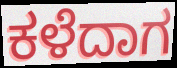
ಕಳೆದಾಗ